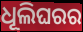
ଧୂଲିଘରର